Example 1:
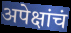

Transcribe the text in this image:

अपेक्षांचं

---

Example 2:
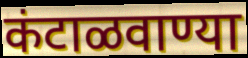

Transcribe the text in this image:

कंटाळवाण्या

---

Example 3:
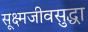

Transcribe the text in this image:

सूक्ष्मजीवसुद्धा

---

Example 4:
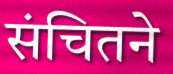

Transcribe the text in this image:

संचितने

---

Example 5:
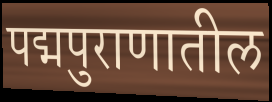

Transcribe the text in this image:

पद्मपुराणातील